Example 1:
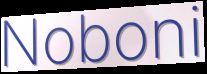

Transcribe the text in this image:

Noboni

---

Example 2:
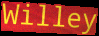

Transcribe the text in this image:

Willey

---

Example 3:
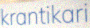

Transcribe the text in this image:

krantikari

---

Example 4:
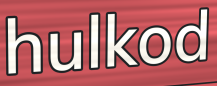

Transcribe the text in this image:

hulkod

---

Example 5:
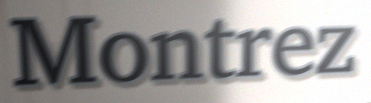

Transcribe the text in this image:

Montrez